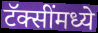
टॅक्सींमध्ये